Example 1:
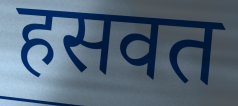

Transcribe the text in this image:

हसवत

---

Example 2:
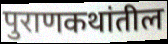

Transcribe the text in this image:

पुराणकथांतील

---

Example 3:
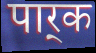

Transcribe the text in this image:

पार्क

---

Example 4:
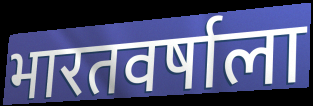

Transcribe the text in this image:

भारतवर्षाला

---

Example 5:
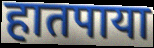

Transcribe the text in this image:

हातपाया